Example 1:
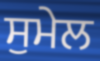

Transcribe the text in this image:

ਸੁਮੇਲ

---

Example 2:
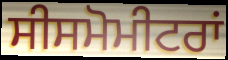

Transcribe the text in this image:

ਸੀਸਮੋਮੀਟਰਾਂ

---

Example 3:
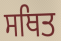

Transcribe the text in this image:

ਸਥਿਤ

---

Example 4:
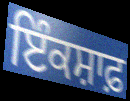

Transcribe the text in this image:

ਇੰਕਸ਼ਾਫ਼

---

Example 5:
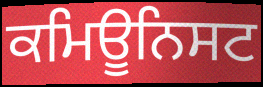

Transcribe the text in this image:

ਕਮਿਊਨਿਸਟ